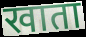
खाता